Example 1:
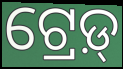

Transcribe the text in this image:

ଟ୍ରେଡ଼୍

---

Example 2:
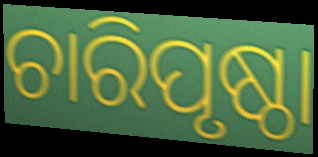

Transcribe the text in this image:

ଚାରିପୃଷ୍ଠା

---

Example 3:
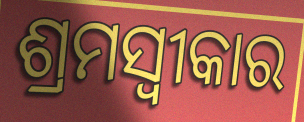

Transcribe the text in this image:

ଶ୍ରମସ୍ୱୀକାର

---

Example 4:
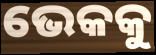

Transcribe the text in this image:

ଭେକକୁ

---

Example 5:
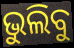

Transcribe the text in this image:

ଭୁଲିବୁ